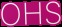
OHS